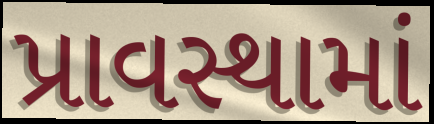
પ્રાવસ્થામાં